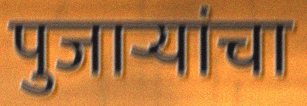
पुजाऱ्यांचा